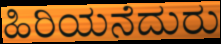
ಹಿರಿಯನೆದುರು